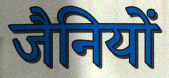
जैनियों